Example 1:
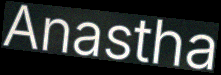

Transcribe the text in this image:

Anastha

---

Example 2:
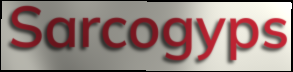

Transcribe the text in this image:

Sarcogyps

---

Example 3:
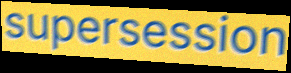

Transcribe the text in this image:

supersession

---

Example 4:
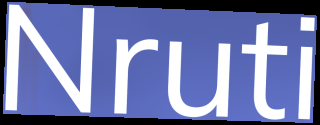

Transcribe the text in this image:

Nruti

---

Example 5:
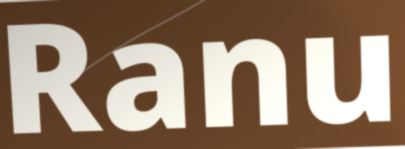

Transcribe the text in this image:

Ranu